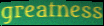
greatness